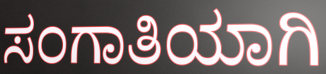
ಸಂಗಾತಿಯಾಗಿ